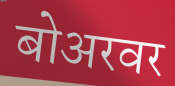
बोअरवर